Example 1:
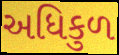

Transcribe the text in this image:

અધિકુળ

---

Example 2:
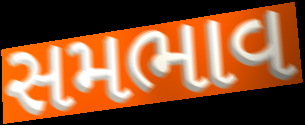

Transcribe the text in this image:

સમભાવ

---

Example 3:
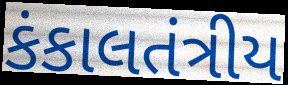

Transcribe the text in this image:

કંકાલતંત્રીય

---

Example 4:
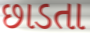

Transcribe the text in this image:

છાડતા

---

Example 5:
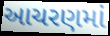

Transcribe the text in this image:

આચરણમાં